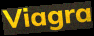
Viagra